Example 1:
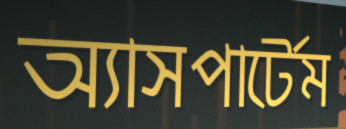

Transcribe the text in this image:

অ্যাসপার্টেম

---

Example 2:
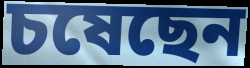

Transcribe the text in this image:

চষেছেন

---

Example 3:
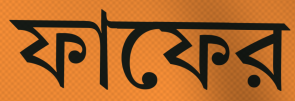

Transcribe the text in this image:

ফাফের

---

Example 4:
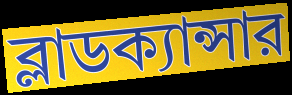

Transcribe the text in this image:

ব্লাডক্যান্সার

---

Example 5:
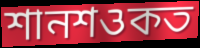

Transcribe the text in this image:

শানশওকত